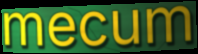
mecum